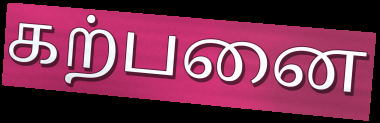
கற்பனை